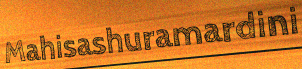
Mahisashuramardini